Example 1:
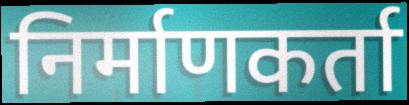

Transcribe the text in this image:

निर्माणकर्ता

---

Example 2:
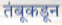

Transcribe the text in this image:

तंबूकडून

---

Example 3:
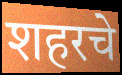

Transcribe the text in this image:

शहरचे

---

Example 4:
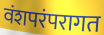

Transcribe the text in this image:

वंशपरंपरागत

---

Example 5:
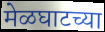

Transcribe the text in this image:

मेळघाटच्या